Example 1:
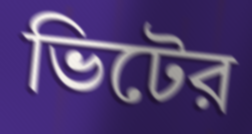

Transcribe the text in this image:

ভিটের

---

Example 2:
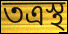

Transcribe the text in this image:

তত্রস্থ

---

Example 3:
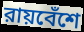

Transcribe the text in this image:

রায়বেঁশে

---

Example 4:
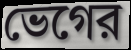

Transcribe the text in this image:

ভেগের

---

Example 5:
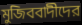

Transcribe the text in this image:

মুজিববাদীদের